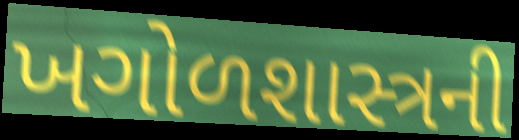
ખગોળશાસ્ત્રની